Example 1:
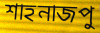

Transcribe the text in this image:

শাহনাজপু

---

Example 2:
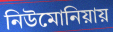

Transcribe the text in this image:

নিউমোনিয়ায়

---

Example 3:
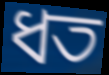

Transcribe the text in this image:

ধত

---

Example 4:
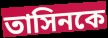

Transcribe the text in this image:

তাসিনকে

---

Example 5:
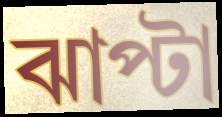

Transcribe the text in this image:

ঝাপ্টা